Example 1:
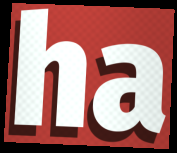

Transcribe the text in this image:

ha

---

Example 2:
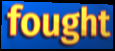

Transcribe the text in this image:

fought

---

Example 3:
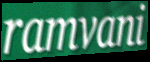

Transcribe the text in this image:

ramvani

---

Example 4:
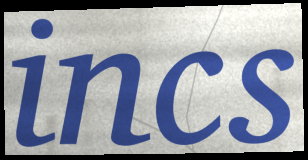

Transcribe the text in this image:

incs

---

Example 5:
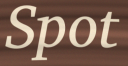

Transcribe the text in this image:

Spot